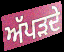
ਅੱਪੜਦੇ